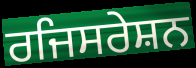
ਰਜਿਸਰੇਸ਼ਨ